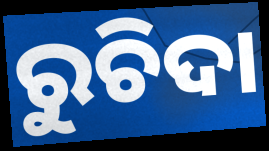
ରୁଚିଦା